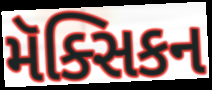
મૅક્સિકન